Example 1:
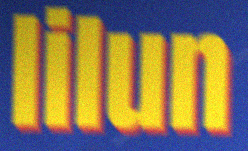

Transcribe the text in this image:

lilun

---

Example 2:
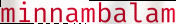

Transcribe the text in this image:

minnambalam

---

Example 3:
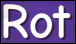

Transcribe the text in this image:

Rot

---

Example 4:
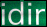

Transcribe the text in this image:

idir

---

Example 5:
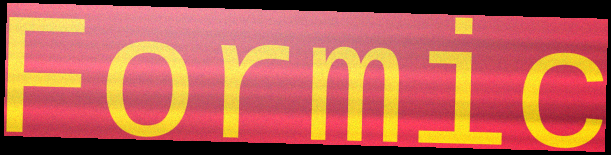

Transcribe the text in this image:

Formic